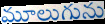
మూలుగును